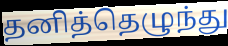
தனித்தெழுந்து